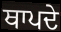
ਥਾਪਦੇ